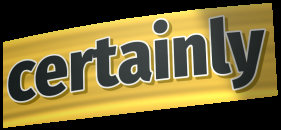
certainly